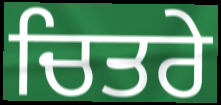
ਚਿਤਰੇ